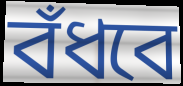
বঁধবে